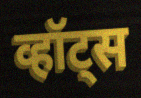
व्हॉट्स